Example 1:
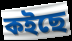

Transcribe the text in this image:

কইছে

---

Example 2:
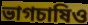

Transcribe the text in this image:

ভাগচাষিও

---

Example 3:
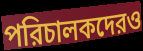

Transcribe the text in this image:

পরিচালকদেরও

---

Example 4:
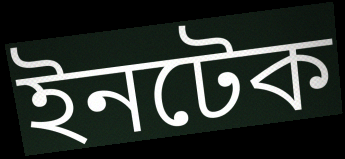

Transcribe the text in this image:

ইনটেক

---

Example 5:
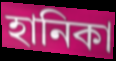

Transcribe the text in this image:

হানিকা